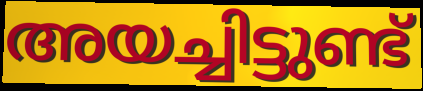
അയച്ചിട്ടുണ്ട്